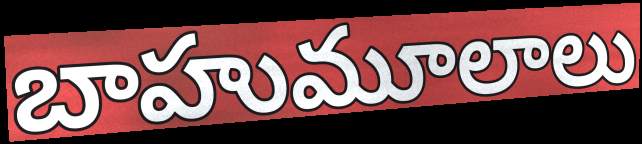
బాహుమూలాలు